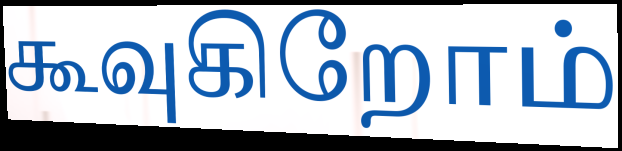
கூவுகிறோம்